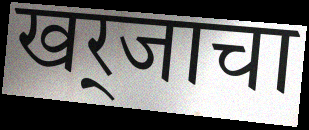
खर्जाचा